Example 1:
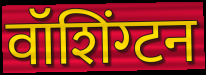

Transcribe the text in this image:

वॉशिंग्टन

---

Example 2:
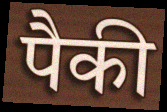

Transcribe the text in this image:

पैकी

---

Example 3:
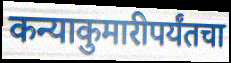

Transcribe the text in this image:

कन्याकुमारीपर्यंतचा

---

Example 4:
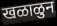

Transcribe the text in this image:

खळाळुन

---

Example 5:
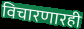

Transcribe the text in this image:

विचारणारही